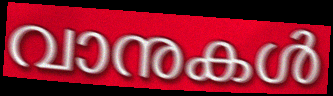
വാനുകൾ